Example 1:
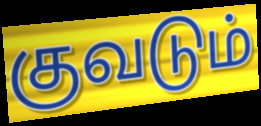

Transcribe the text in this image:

குவடும்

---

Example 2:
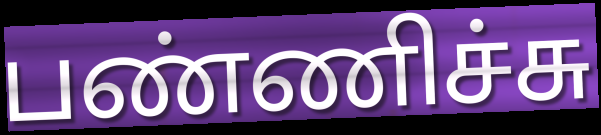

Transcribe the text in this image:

பண்ணிச்சு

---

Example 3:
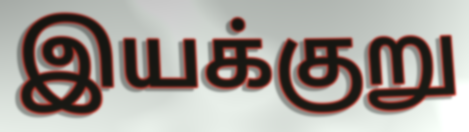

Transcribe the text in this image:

இயக்குறு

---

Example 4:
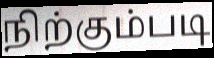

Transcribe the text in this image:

நிற்கும்படி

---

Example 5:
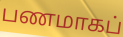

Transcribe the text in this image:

பணமாகப்